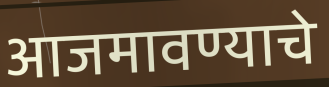
आजमावण्याचे